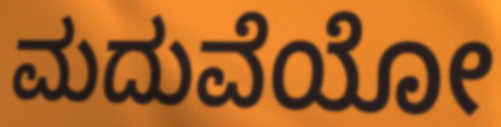
ಮದುವೆಯೋ